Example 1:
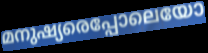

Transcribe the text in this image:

മനുഷ്യരെപ്പോലെയോ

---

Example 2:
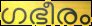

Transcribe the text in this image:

ഗഭീരം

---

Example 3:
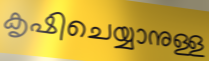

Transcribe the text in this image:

കൃഷിചെയ്യാനുള്ള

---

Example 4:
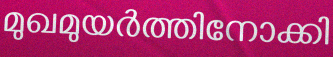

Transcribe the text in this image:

മുഖമുയർത്തിനോക്കി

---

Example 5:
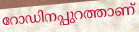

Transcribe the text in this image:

റോഡിനപ്പുറത്താണ്